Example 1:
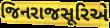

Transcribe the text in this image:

જિનરાજસૂરિએ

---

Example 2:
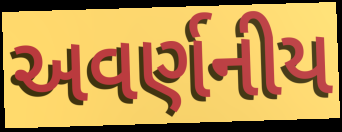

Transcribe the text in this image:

અવર્ણનીય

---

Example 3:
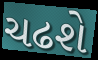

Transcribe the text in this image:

ચઢશે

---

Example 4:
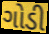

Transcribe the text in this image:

ગોડી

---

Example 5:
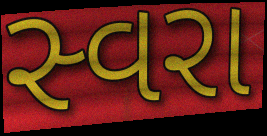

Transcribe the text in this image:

સ્વરા